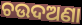
ଚଉଦଅଣା